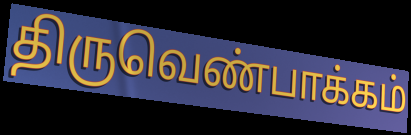
திருவெண்பாக்கம்